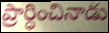
ప్రార్ధించినాడు